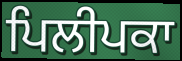
ਪਿਲੀਪਕਾ